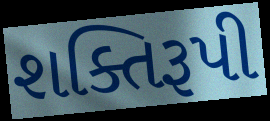
શક્તિરૂપી